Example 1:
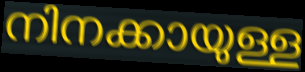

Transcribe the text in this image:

നിനക്കായുള്ള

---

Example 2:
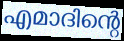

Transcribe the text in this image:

എമാദിന്റെ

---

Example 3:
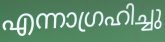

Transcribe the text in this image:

എന്നാഗ്രഹിച്ചു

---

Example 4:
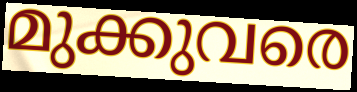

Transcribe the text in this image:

മുക്കുവരെ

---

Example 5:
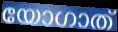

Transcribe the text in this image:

യോഗാത്